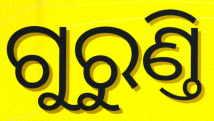
ଗୁରୁଣ୍ତି